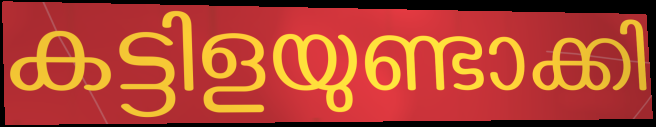
കട്ടിളയുണ്ടാക്കി